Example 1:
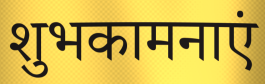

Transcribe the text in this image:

शुभकामनाएं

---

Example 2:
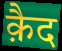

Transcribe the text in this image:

क़ैद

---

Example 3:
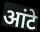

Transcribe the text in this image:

आंटे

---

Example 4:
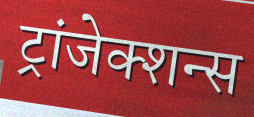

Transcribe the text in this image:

ट्रांजेक्शन्स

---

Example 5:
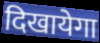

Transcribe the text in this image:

दिखायेगा